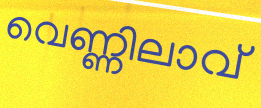
വെണ്ണിലാവ്